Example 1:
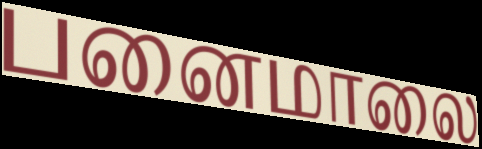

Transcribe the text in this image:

பனைமாலை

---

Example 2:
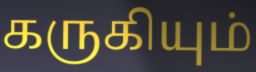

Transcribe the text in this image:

கருகியும்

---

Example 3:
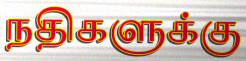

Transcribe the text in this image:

நதிகளுக்கு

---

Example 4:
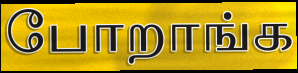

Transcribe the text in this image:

போறாங்க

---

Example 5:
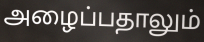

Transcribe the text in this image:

அழைப்பதாலும்